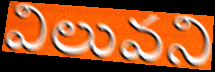
విలువని